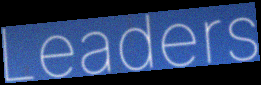
Leaders